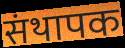
संथापक